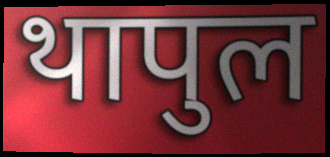
थापुल